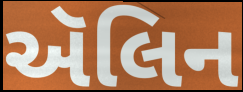
ઍલિન